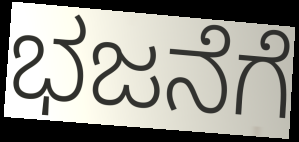
ಭಜನೆಗೆ